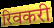
रिवकरी